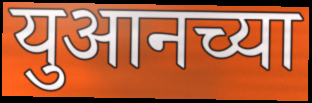
युआनच्या